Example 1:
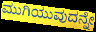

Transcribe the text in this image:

ಮುಗಿಯುವುದನ್ನೇ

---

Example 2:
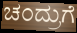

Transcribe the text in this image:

ಚಂದ್ರುಗೆ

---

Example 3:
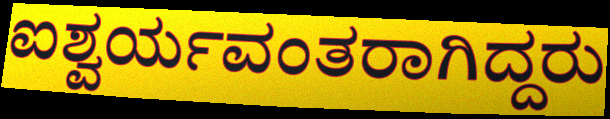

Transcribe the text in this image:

ಐಶ್ವರ್ಯವಂತರಾಗಿದ್ದರು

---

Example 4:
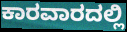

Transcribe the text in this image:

ಕಾರವಾರದಲ್ಲಿ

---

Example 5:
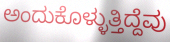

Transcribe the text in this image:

ಅಂದುಕೊಳ್ಳುತ್ತಿದ್ದೆವು